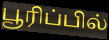
பூரிப்பில்